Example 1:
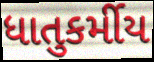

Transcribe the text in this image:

ધાતુકર્મીય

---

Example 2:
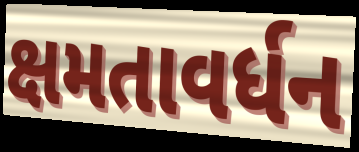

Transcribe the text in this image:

ક્ષમતાવર્ધન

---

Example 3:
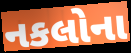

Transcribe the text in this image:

નકલોના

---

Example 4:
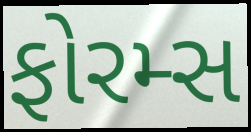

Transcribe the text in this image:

ફોરમ્સ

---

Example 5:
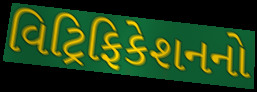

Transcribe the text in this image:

વિટ્રિફિકેશનનો